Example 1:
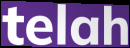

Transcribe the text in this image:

telah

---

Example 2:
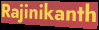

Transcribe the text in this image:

Rajinikanth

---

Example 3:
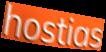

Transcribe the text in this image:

hostias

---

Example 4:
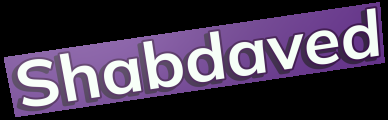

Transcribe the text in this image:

Shabdaved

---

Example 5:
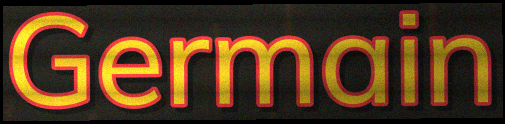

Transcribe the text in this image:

Germain